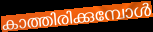
കാത്തിരിക്കുമ്പോൾ